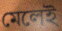
মেলেই